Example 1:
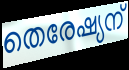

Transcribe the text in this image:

തെരേഷ്യന്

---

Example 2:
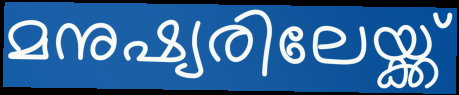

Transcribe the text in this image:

മനുഷ്യരിലേയ്ക്ക്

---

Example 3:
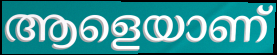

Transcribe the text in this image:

ആളെയാണ്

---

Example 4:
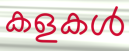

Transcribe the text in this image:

കളകൾ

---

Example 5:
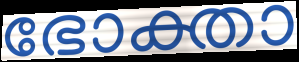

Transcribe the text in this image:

ഭോക്താ